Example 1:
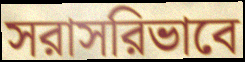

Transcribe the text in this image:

সরাসরিভাবে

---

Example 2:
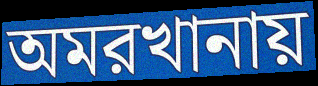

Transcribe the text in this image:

অমরখানায়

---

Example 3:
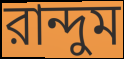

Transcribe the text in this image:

রান্দুম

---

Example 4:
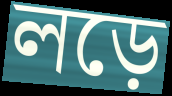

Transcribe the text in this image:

লড়ে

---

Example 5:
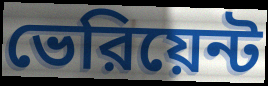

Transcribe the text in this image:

ভেরিয়েন্ট